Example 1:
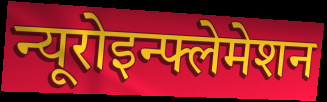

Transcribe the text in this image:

न्यूरोइन्फ्लेमेशन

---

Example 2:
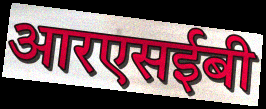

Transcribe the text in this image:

आरएसईबी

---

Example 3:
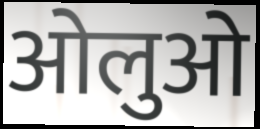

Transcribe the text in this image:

ओलुओ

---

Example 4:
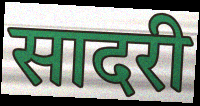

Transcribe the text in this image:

सादरी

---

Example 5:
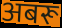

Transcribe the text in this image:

अबरू